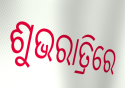
ଶୁଭରାତ୍ରିରେ